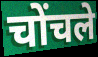
चोंचले